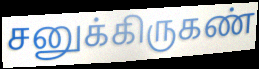
சனுக்கிருகண்